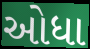
ઓધા